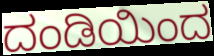
ದಂಡಿಯಿಂದ